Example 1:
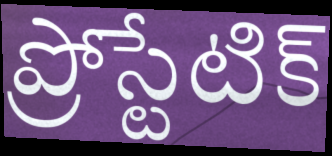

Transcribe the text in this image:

ప్రోస్టేటిక్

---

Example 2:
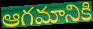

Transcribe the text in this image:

ఆగమానికి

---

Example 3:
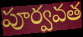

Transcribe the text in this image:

పూర్వవత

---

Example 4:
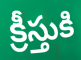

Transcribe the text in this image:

క్రీస్తుకి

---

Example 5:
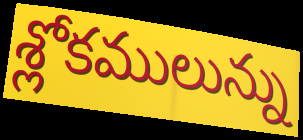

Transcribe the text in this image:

శ్లోకములున్ను